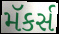
મૅકર્સ